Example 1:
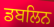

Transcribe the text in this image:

ਡਬਲਿਨ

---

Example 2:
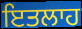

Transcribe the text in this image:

ਇਤਲਾਹ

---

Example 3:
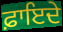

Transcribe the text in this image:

ਫ਼ਾਇਦੇ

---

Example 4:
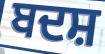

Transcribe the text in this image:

ਬਦਸ਼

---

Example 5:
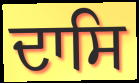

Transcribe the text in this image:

ਦਾਸਿ